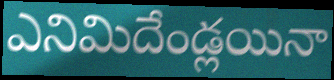
ఎనిమిదేండ్లయినా